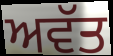
ਅਵੱਤ